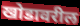
खोडावरील